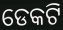
ଡେକଟି